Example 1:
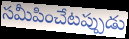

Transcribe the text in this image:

సమీపించేటప్పుడు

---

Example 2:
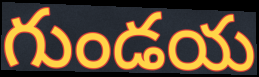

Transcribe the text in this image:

గుండయ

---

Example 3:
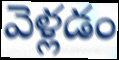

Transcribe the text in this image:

వెళ్లడం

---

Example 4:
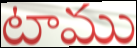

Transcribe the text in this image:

టాము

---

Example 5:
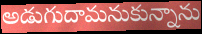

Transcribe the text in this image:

అడుగుదామనుకున్నాను